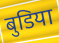
बुडिया